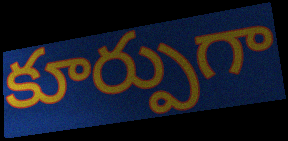
కూర్పుగా